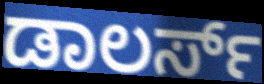
ಡಾಲರ್ಸ್